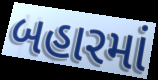
બહારમાં